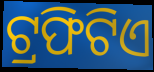
ଟ୍ରଫିଟିଏ